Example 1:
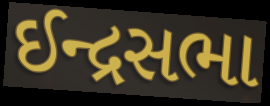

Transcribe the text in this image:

ઈન્દ્રસભા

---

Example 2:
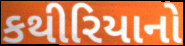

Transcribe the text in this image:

કથીરિયાનો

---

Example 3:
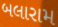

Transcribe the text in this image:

બલારામ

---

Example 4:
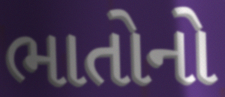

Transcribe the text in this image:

ભાતોનો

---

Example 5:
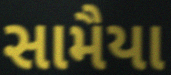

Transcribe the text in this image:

સામૈયા